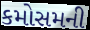
કમોસમની